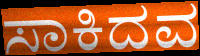
ಸಾಕಿದವ